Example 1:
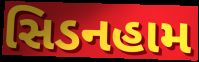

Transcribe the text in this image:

સિડનહામ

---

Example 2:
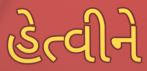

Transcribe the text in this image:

હેત્વીને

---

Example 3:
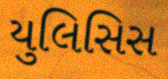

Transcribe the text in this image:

યુલિસિસ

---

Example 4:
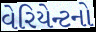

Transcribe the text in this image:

વેરિયેન્ટનો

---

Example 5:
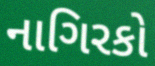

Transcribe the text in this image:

નાગિરકો